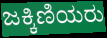
ಜಕ್ಕಿಣಿಯರು